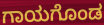
ಗಾಯಗೊಂಡ